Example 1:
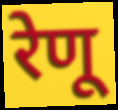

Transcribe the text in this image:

रेणू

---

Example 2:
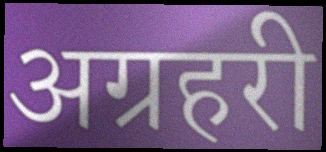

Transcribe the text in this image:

अग्रहरी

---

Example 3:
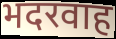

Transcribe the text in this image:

भदरवाह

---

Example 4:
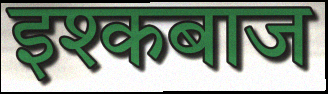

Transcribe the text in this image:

इश्कबाज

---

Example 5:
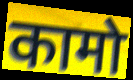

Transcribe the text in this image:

कामो